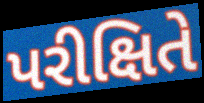
પરીક્ષિતે